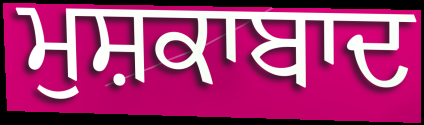
ਮੁਸ਼ਕਾਬਾਦ